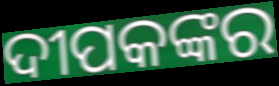
ଦୀପକଙ୍କର